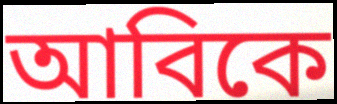
আবিকে